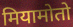
मियामोतो